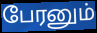
பேரனும்